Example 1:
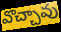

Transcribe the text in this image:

వొచ్చావు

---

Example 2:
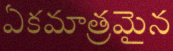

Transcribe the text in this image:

ఏకమాత్రమైన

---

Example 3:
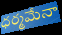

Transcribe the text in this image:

ధర్మమేనా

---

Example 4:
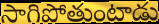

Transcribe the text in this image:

సాగిపోతుంటాడు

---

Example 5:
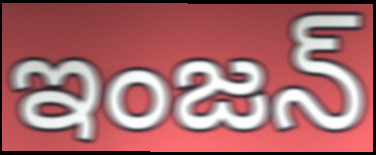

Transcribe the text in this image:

ఇంజన్